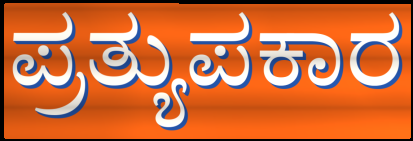
ಪ್ರತ್ಯುಪಕಾರ